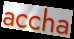
accha